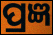
ପ୍ରଜ୍ଞ